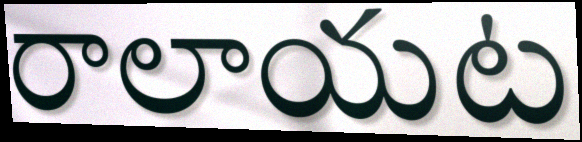
రాలాయట